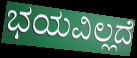
ಭಯವಿಲ್ಲದೆ